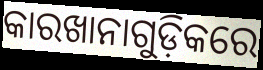
କାରଖାନାଗୁଡ଼ିକରେ